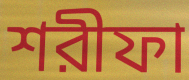
শরীফা